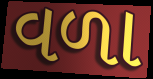
વળા